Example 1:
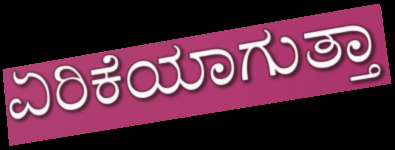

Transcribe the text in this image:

ಏರಿಕೆಯಾಗುತ್ತಾ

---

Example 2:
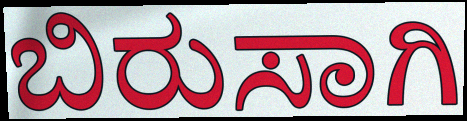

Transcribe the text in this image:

ಬಿರುಸಾಗಿ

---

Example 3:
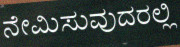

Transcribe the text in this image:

ನೇಮಿಸುವುದರಲ್ಲಿ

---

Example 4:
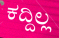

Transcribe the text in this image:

ಕದ್ದಿಲ್ಲ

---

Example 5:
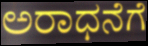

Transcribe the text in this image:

ಅರಾಧನೆಗೆ